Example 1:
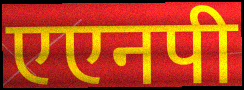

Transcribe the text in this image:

एएनपी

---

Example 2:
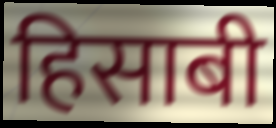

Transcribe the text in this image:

हिसाबी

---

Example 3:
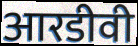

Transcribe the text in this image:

आरडीवी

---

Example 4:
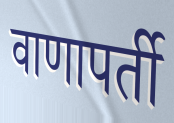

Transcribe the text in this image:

वाणापर्ती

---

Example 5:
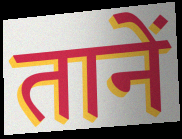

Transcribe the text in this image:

तानें